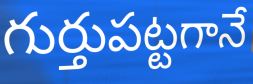
గుర్తుపట్టగానే